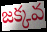
జక్కవ